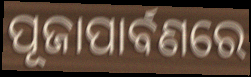
ପୂଜାପାର୍ବଣରେ